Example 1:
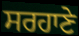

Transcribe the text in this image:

ਸਰਹਾਣੇ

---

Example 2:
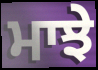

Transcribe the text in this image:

ਮਾਝੇ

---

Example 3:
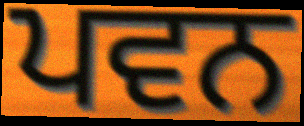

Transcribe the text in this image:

ਪਵਨ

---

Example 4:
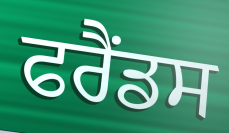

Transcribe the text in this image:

ਫਰੈਂਡਸ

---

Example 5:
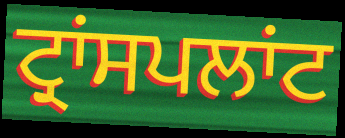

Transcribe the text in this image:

ਟ੍ਰਾਂਸਪਲਾਂਟ